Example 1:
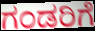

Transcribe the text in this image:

ಗಂಡರಿಗೆ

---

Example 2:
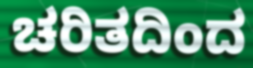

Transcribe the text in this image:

ಚರಿತದಿಂದ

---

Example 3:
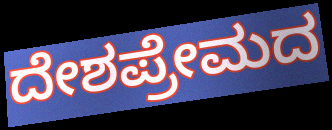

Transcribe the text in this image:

ದೇಶಪ್ರೇಮದ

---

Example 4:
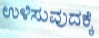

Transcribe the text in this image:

ಉಳಿಸುವುದಕ್ಕೆ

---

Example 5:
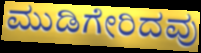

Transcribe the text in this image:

ಮುಡಿಗೇರಿದವು